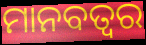
ମାନବତ୍ୱର